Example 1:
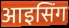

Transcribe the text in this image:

आइसिंग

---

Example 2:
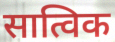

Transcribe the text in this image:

सात्विक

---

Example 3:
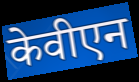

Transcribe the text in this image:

केवीएन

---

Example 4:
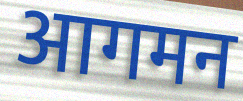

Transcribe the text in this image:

आगमन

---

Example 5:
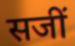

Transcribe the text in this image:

सजीं